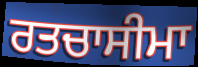
ਰਤਚਾਸੀਮਾ